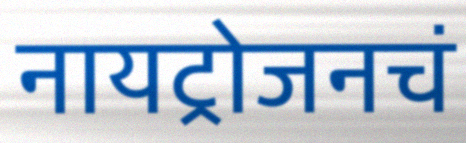
नायट्रोजनचं